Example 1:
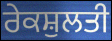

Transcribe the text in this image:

ਰੇਕਸ਼ੁਲਤੀ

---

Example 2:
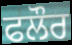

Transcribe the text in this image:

ਫਲੌਰ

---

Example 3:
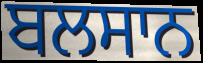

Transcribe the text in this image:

ਬਲਸਾਨ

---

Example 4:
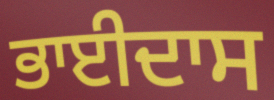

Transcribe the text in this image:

ਭਾਈਦਾਸ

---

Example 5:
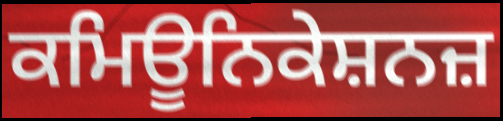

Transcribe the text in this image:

ਕਮਿਊਨਿਕੇਸ਼ਨਜ਼